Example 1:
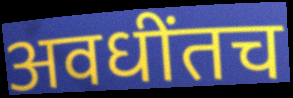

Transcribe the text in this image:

अवधींतच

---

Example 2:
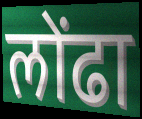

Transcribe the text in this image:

लोंढा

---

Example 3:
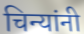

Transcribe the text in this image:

चिन्यांनी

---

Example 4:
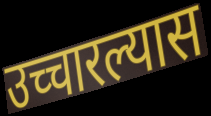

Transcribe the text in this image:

उच्चारल्यास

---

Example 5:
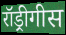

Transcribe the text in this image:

रॉड्रीगीस